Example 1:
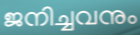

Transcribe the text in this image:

ജനിച്ചവനും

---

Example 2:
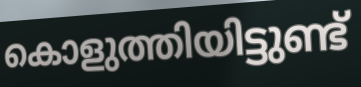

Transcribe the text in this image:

കൊളുത്തിയിട്ടുണ്ട്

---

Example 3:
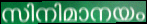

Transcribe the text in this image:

സിനിമാനയം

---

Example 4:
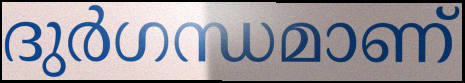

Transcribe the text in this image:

ദുർഗന്ധമാണ്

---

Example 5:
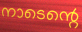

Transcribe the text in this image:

നാടെന്റെ